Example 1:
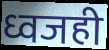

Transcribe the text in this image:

ध्वजही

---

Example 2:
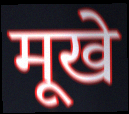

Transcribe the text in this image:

मूखे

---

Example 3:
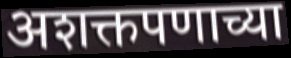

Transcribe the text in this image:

अशक्तपणाच्या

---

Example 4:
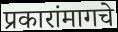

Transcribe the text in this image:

प्रकारांमागचे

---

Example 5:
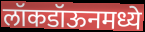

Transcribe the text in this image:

लॉकडॉऊनमध्ये